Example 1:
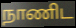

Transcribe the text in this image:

நாணிட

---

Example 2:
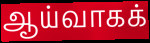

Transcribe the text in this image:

ஆய்வாகக்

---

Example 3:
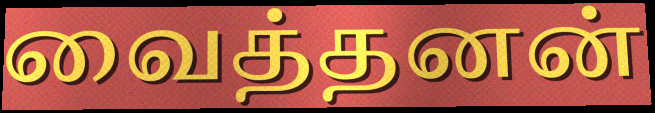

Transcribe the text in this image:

வைத்தனன்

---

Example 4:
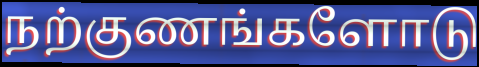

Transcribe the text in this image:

நற்குணங்களோடு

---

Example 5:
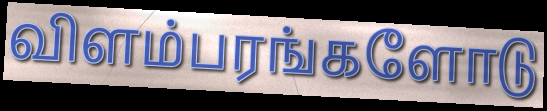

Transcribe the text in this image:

விளம்பரங்களோடு